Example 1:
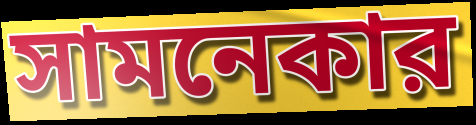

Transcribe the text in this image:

সামনেকার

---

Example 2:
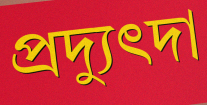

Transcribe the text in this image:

প্রদ্যুৎদা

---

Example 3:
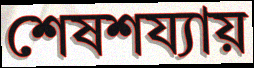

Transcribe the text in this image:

শেষশয্যায়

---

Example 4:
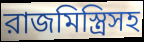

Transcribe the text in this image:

রাজমিস্ত্রিসহ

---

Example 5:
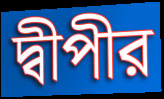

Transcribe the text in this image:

দ্বীপীর